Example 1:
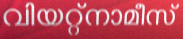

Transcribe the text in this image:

വിയറ്റ്നാമീസ്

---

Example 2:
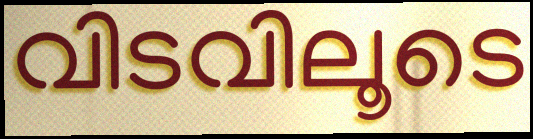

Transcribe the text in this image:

വിടവിലൂടെ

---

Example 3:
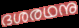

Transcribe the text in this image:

ദശരഥനു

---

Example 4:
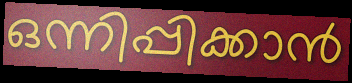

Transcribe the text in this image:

ഒന്നിപ്പിക്കാൻ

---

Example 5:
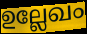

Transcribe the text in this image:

ഉല്ലേഖം